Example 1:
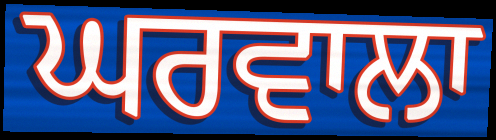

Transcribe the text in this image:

ਘਰਵਾਲਾ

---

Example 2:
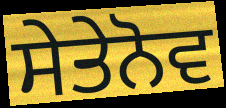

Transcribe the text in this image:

ਸੇਤੇਨੋਵ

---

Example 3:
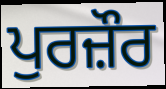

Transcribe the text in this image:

ਪੁਰਜ਼ੌਰ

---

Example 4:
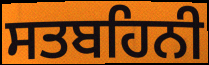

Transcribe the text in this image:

ਸਤਬਹਿਨੀ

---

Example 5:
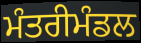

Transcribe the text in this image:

ਮੰਤਰੀਮੰਡਲ